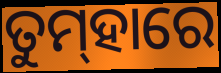
ତୁମ୍‌ହାରେ